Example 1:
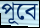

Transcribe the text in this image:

পূবে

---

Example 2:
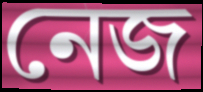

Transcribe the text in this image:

নেজ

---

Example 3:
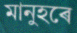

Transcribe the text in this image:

মানুহৰে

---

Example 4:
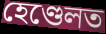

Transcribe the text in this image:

হেণ্ডেলত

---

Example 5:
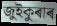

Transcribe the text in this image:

জুইকুৰাৰ